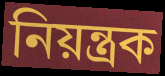
নিয়ন্ত্রক